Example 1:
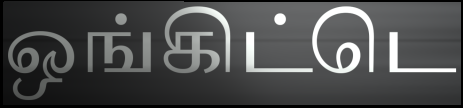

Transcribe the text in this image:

ஒங்கிட்டெ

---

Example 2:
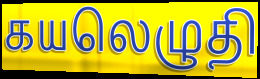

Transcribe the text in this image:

கயலெழுதி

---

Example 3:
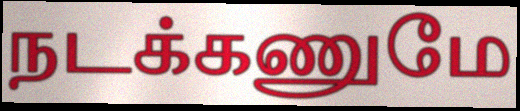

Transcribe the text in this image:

நடக்கணுமே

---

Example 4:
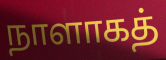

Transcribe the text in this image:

நாளாகத்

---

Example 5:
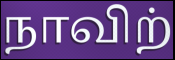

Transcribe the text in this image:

நாவிற்